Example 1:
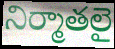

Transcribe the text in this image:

నిర్మాతలై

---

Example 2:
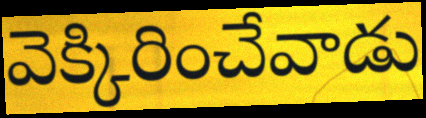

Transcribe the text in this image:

వెక్కిరించేవాడు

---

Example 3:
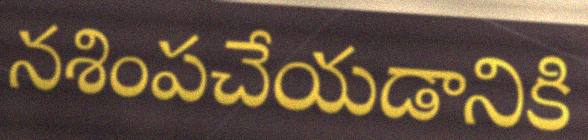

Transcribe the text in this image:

నశింపచేయడానికి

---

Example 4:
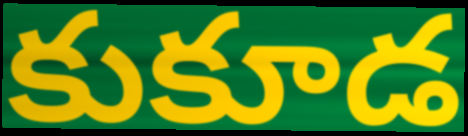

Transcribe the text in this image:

కుకూడ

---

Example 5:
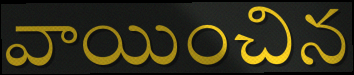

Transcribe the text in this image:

వాయించిన